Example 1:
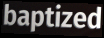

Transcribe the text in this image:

baptized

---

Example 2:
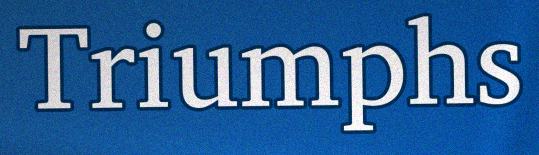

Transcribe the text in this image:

Triumphs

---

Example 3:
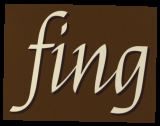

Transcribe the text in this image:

fing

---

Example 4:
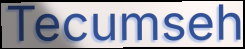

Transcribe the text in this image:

Tecumseh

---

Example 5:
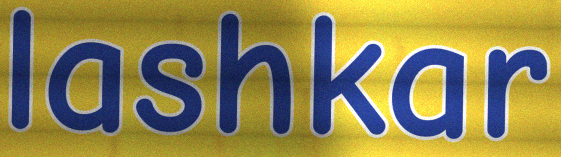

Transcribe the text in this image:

lashkar